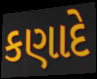
કણાદે